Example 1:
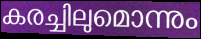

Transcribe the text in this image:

കരച്ചിലുമൊന്നും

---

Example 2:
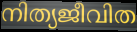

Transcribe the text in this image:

നിത്യജീവിത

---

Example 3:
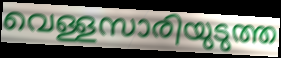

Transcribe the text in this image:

വെള്ളസാരിയുടുത്ത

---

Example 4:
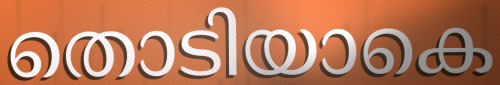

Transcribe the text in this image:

തൊടിയാകെ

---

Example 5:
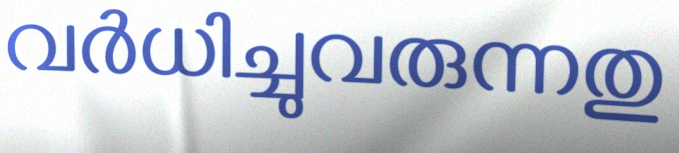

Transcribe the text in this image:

വർധിച്ചുവരുന്നതു